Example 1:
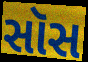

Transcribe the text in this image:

સૉસ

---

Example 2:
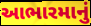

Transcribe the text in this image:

આભારમાનું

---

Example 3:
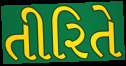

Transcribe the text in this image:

તીરિતે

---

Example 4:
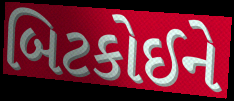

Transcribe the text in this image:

બિટકોઈને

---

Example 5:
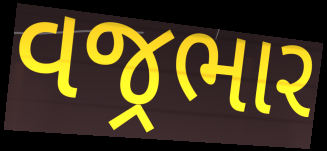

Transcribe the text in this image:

વજ્રભાર